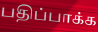
பதிப்பாக்க